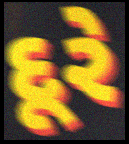
દૂરે